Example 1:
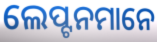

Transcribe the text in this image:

ଲେପ୍ଟନମାନେ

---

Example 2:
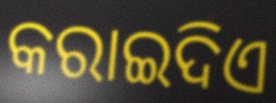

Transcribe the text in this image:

କରାଇଦିଏ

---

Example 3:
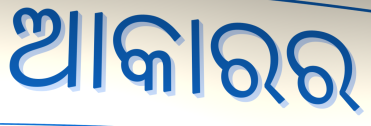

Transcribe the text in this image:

ଆକାରର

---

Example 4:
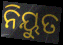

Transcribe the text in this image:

ନିୟୁତ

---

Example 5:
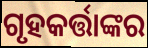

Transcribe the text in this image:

ଗୃହକର୍ତ୍ତାଙ୍କର